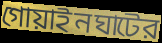
গোয়াইনঘাটের